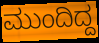
ಮುಂದಿದ್ದ